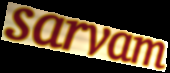
sarvam